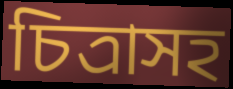
চিত্রাসহ